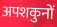
अपशकुनों